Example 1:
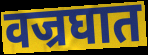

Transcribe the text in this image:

वज्रघात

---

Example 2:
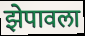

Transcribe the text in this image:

झेपावला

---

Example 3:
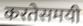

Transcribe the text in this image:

करतेसमयी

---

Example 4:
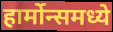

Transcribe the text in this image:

हार्मोन्समध्ये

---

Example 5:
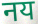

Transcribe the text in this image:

नय